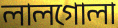
লালগোলা